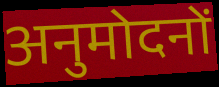
अनुमोदनों